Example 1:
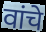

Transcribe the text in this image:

वांचे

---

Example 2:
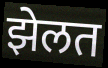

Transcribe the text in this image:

झेलत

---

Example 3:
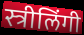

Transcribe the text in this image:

स्त्रीलिंगी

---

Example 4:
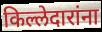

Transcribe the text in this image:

किल्लेदारांना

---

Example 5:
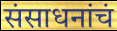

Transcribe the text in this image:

संसाधनांचं